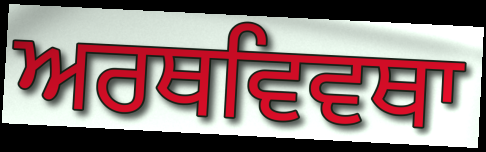
ਅਰਥਵਿਵਥਾ